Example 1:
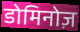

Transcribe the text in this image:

डोमिनोज़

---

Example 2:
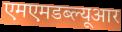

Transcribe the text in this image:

एमएमडब्ल्यूआर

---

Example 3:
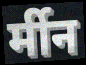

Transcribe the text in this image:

र्मीन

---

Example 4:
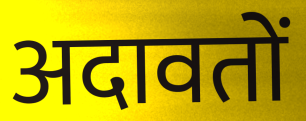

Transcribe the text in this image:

अदावतों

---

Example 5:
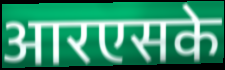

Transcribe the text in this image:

आरएसके